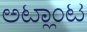
ಅಟ್ಲಾಂಟ